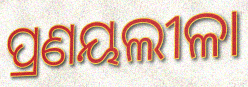
ପ୍ରଣୟଲୀଳା